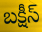
బక్షీస్